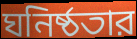
ঘনিষ্ঠতার